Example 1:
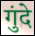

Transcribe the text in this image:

गुंदे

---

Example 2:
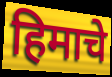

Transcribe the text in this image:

हिमाचे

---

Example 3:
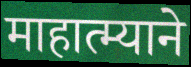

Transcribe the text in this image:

माहात्म्याने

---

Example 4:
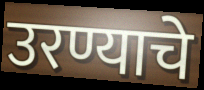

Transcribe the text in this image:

उरण्याचे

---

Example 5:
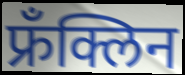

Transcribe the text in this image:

फ्रँक्लिन